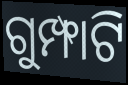
ଗୁମ୍ଫାଟି